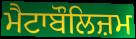
ਮੈਟਾਬੌਲਿਜ਼ਮ